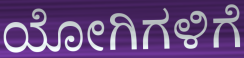
ಯೋಗಿಗಳಿಗೆ